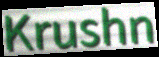
Krushn